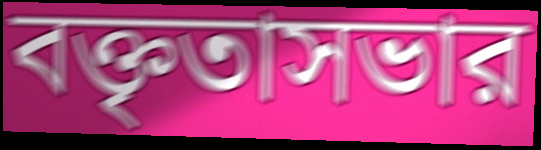
বক্তৃতাসভার